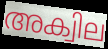
അക്വില